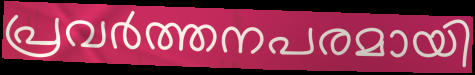
പ്രവർത്തനപരമായി